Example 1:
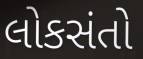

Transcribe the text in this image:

લોકસંતો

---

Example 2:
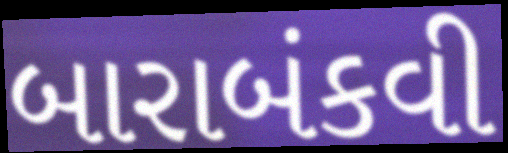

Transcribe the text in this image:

બારાબંકવી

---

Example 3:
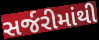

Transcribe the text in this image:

સર્જરીમાંથી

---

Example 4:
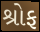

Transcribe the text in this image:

શ્રોફ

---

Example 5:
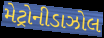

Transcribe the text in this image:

મેટ્રોનીડાઝોલ